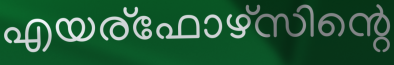
എയര്ഫോഴ്സിന്റെ